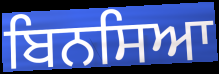
ਬਿਨਸਿਆ